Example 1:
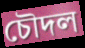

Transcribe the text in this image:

চৌদল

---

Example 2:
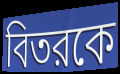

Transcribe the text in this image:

বিতরকে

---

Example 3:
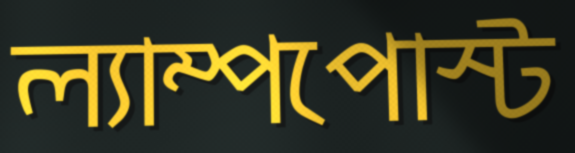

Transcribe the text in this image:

ল্যাম্পপোস্ট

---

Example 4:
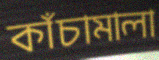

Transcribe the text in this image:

কাঁচামালা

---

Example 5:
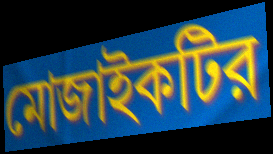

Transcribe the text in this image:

মোজাইকটির